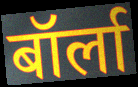
बॉर्ला